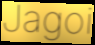
Jagoi